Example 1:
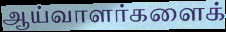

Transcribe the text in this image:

ஆய்வாளர்களைக்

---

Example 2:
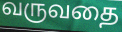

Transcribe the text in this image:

வருவதை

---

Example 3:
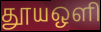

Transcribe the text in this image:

தூயஒளி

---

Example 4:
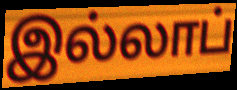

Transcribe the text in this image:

இல்லாப்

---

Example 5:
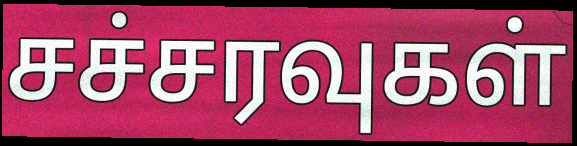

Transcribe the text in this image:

சச்சரவுகள்